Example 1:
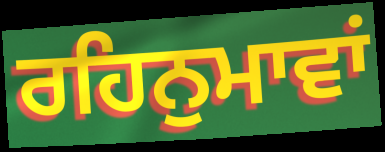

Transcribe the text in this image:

ਰਹਿਨੁਮਾਵਾਂ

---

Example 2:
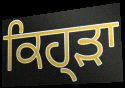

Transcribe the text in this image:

ਕਿਹ੍ੜਾ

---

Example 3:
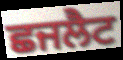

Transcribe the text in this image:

ਛਜਲੈਟ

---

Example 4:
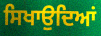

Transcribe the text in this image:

ਸਿਖਾਉਦਿਆਂ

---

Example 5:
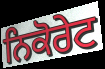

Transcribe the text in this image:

ਨਿਕੋਰੇਟ